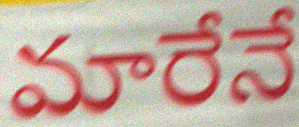
మారేనే